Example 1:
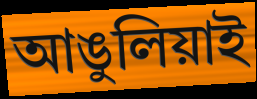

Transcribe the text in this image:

আঙুলিয়াই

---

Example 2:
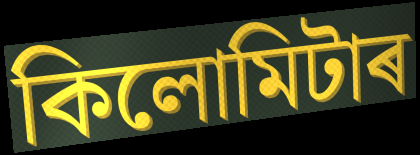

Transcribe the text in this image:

কিলোমিটাৰ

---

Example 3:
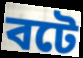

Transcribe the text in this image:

বটে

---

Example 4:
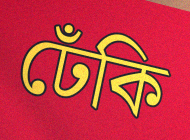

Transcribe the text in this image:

ঢেঁকি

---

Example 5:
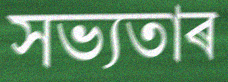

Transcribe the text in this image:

সভ্যতাৰ